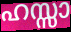
ഹസ്സാ